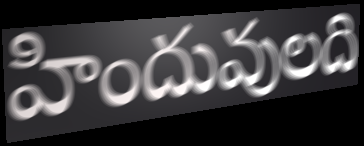
హిందువులది